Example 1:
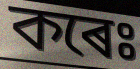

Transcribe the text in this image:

কৰেঃ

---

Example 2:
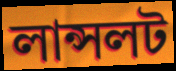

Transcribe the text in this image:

লান্সলট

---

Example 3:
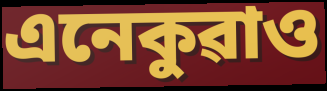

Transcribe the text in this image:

এনেকুৱাও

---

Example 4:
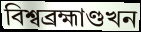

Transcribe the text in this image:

বিশ্বব্ৰহ্মাণ্ডখন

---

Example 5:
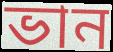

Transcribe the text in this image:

ভান